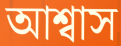
আশ্বাস